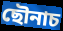
ছৌনাচ